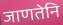
जाणतेनि